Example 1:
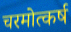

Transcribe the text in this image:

चरमोत्कर्ष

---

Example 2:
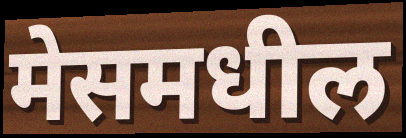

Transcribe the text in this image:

मेसमधील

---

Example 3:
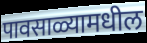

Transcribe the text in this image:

पावसाळ्यामधील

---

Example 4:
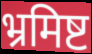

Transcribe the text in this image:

भ्रमिष्ट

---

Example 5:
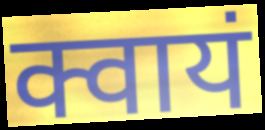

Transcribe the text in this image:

क्वायं